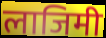
लाजिमी